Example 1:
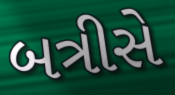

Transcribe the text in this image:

બત્રીસે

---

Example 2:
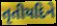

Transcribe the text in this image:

તૃતીયદિને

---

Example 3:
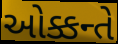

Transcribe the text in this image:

ઓક્કન્તે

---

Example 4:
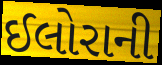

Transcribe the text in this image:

ઈલોરાની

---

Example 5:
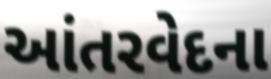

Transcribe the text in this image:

આંતરવેદના